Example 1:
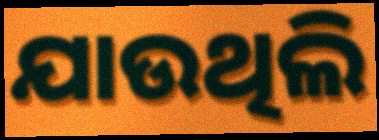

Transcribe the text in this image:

ଯାଉଥିଲି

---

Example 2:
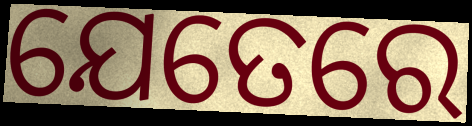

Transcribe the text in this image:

ଯେତେରେ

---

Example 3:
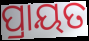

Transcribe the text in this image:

ପ୍ରାୟତ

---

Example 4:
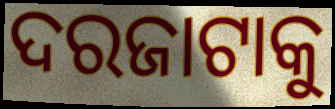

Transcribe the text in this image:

ଦରଜାଟାକୁ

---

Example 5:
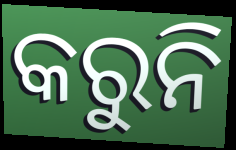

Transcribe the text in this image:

କରୁନି